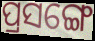
ପ୍ରସଙ୍ଗେ